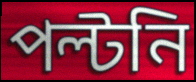
পল্টনি